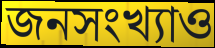
জনসংখ্যাও